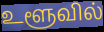
உளூவில்